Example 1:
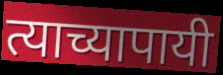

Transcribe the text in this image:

त्याच्यापायी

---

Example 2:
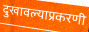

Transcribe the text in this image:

दुखावल्याप्रकरणी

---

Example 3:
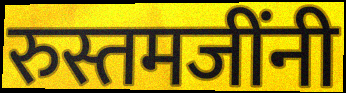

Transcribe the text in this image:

रुस्तमजींनी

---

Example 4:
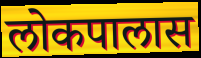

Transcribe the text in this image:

लोकपालास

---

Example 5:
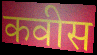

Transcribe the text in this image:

कवीस